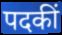
पदकीं